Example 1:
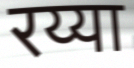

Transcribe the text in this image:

रय्या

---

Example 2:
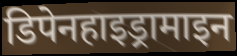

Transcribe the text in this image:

डिपेनहाइड्रामाइन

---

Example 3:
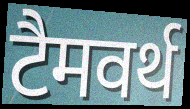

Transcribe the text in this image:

टैमवर्थ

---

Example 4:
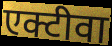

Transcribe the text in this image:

एक्टीवा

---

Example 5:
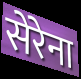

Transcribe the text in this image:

सेरेना